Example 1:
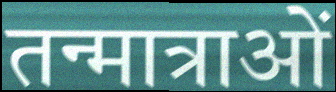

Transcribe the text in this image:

तन्मात्राओं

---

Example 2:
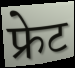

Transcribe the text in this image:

फ्रेट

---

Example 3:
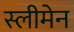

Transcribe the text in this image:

स्लीमेन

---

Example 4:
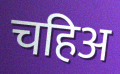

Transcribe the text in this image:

चहिअ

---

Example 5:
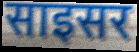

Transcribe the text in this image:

साइसर